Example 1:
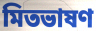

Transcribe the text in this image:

মিতভাষণ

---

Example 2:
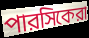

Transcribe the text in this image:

পারসিকেরা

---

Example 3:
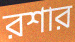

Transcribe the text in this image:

রশার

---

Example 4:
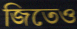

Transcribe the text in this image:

জিতেও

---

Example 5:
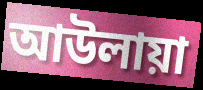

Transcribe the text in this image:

আউলায়া